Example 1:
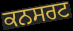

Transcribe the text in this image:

ਕਨਸਰਟ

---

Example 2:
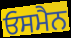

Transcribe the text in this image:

ਓਸਮੈਨ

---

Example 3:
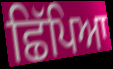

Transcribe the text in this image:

ਛਿੱਪਿਆ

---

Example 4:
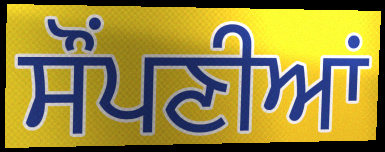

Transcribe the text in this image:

ਸੌਂਪਣੀਆਂ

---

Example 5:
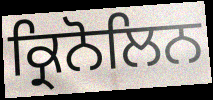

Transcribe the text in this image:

ਕ੍ਰਿਨੋਲਿਨ